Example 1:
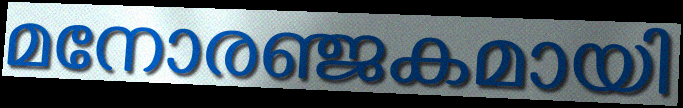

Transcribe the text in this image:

മനോരഞ്ജകമായി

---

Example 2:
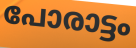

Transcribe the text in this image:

പോരാട്ടം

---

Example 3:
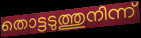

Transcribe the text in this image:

തൊട്ടടുത്തുനിന്ന്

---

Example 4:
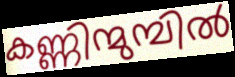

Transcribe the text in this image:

കണ്ണിന്മുമ്പിൽ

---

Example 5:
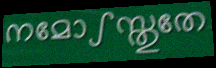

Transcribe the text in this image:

നമോഽസ്തുതേ